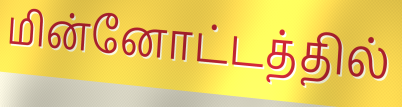
மின்னோட்டத்தில்